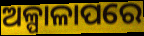
ଅଳ୍ପାଳାପରେ